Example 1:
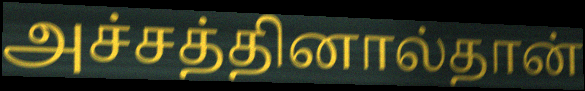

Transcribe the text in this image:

அச்சத்தினால்தான்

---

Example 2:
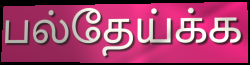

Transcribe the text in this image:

பல்தேய்க்க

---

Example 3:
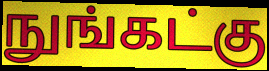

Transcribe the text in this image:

நுங்கட்கு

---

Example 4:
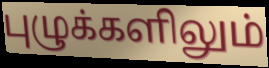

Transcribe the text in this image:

புழுக்களிலும்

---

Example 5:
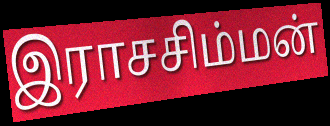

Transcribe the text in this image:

இராசசிம்மன்